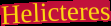
Helicteres